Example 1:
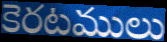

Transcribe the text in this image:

కెరటములు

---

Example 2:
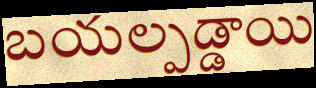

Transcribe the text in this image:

బయల్పడ్డాయి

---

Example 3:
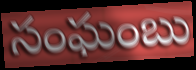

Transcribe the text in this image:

సంఘంబు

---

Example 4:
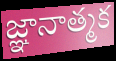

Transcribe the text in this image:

జ్ఞానాత్మక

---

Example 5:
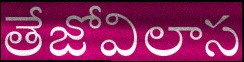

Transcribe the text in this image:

తేజోవిలాస